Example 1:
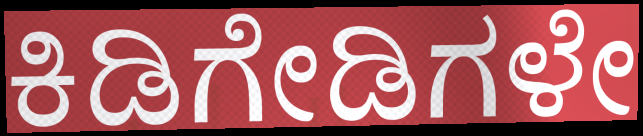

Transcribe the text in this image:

ಕಿಡಿಗೇಡಿಗಳೇ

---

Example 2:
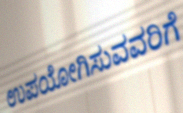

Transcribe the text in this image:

ಉಪಯೋಗಿಸುವವರಿಗೆ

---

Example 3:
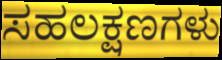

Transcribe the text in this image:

ಸಹಲಕ್ಷಣಗಳು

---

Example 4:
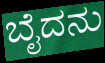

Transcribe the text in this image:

ಬೈದನು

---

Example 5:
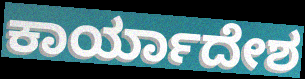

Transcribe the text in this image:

ಕಾರ್ಯಾದೇಶ